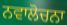
ਨਵਾਲੋਚਨਾ